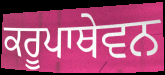
ਕਰੂਪਾਥੇਵਨ